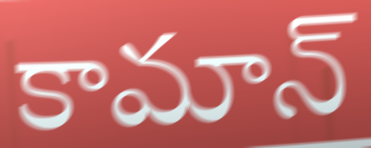
కామాన్